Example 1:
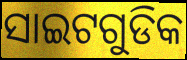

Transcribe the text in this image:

ସାଇଟଗୁଡିକ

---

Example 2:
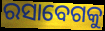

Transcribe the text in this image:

ରସାବେଗକୁ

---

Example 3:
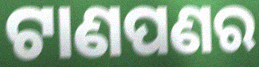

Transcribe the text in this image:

ଟାଣପଣର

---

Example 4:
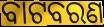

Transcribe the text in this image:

ବାଟବରଣ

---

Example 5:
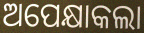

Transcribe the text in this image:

ଅପେକ୍ଷାକଲା